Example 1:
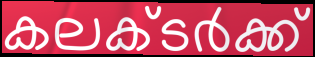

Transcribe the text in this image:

കലക്ടർക്ക്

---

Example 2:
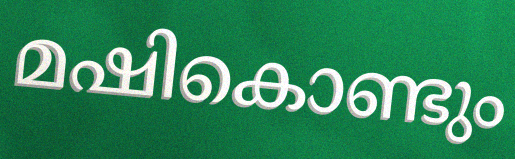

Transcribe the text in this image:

മഷികൊണ്ടും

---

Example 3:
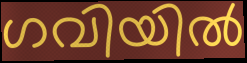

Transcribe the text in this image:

ഗവിയിൽ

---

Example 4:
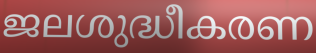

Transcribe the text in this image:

ജലശുദ്ധീകരണ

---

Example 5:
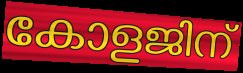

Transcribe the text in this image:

കോളജിന്